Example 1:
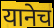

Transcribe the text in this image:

यानेच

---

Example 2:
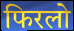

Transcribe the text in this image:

फिरलो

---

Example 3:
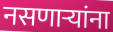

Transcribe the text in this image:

नसणाऱ्यांना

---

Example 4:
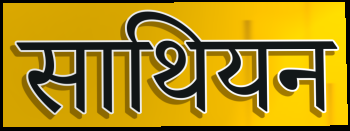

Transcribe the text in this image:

साथियन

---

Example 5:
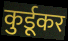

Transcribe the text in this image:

कुर्डूकर